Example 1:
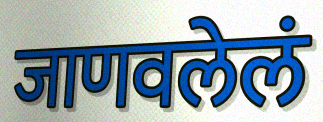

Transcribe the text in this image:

जाणवलेलं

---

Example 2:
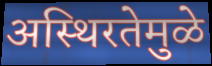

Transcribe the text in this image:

अस्थिरतेमुळे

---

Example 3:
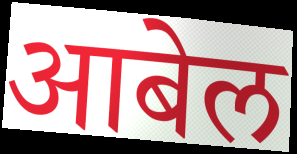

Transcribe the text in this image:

आबेल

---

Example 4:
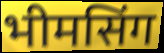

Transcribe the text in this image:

भीमसिंग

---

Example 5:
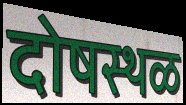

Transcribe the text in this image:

दोषस्थळ